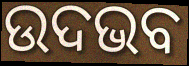
ଉଦଭବ